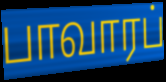
பாவாரப்